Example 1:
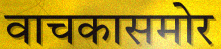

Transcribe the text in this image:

वाचकासमोर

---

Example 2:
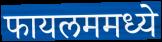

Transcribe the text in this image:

फायलममध्ये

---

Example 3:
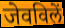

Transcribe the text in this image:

जेवविलें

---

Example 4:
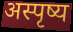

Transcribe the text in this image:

अस्पृष्य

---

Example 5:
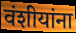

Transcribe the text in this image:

वंशीयांना